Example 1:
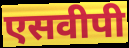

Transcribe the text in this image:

एसवीपी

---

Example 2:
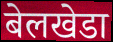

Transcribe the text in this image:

बेलखेडा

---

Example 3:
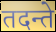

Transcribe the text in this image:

तदन्ते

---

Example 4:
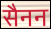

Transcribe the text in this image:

सैनन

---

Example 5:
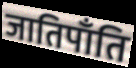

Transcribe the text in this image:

जातिपाँति